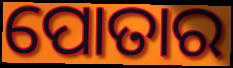
ପୋତାର